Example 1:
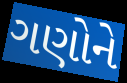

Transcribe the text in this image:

ગણોને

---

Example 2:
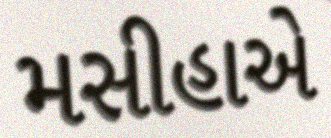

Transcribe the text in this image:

મસીહાએ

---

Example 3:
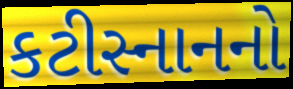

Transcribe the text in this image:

કટીસ્નાનનો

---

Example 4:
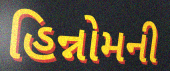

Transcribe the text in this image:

હિન્નોમની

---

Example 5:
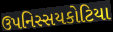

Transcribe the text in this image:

ઉપનિસ્સયકોટિયા